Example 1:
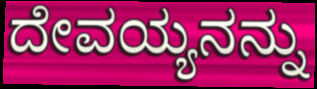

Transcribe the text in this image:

ದೇವಯ್ಯನನ್ನು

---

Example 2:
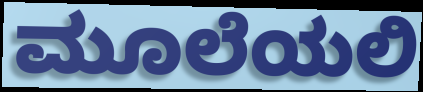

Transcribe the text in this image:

ಮೂಲೆಯಲಿ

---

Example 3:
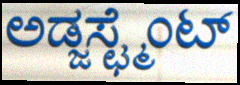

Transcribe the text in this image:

ಅಡ್ಜಸ್ಟ್ಮೆಂಟ್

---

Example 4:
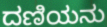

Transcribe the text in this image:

ದಣಿಯನು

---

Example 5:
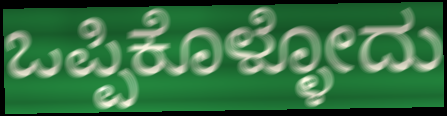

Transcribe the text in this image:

ಒಪ್ಪಿಕೊಳ್ಳೋದು